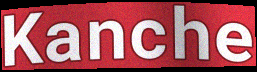
Kanche